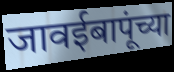
जावईबापूंच्या